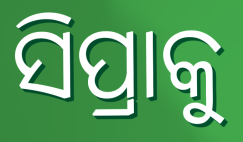
ସିପ୍ରାକୁ